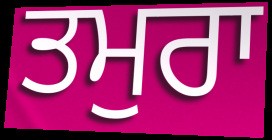
ਤਮੁਰਾ